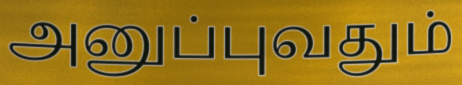
அனுப்புவதும்